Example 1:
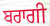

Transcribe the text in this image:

ਬਰਾਗੀ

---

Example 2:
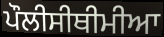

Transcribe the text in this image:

ਪੌਲੀਸੀਥੀਮੀਆ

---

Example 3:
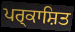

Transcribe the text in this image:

ਪਰ੍ਕਾਸ਼ਿਤ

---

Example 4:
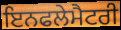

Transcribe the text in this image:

ਇਨਫਲੇਮੈਟਰੀ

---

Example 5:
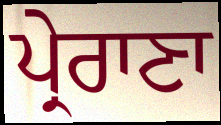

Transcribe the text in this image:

ਪ੍ਰੇਰਾਣਾ